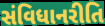
સંવિધાનરીતિ